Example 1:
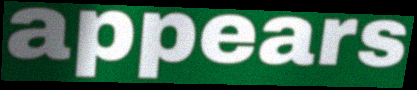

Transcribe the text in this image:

appears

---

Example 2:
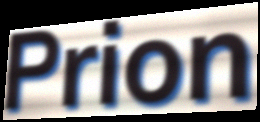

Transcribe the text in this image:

Prion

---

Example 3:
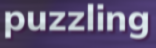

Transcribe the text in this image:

puzzling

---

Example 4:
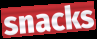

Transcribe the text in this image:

snacks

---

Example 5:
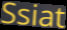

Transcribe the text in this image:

Ssiat